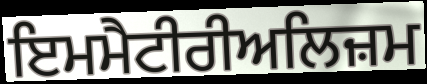
ਇਮਮੈਟੀਰੀਅਲਿਜ਼ਮ